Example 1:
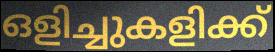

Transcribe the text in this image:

ഒളിച്ചുകളിക്ക്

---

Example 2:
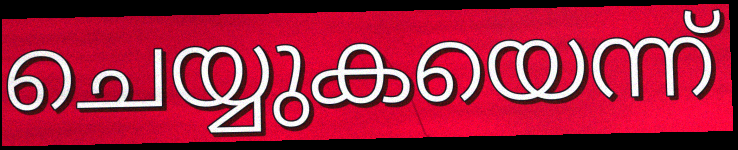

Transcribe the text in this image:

ചെയ്യുകയെന്ന്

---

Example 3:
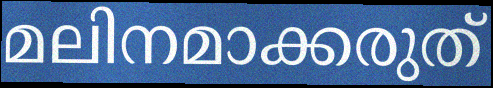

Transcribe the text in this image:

മലിനമാക്കരുത്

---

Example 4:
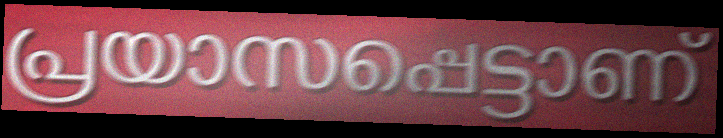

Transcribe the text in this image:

പ്രയാസപ്പെട്ടാണ്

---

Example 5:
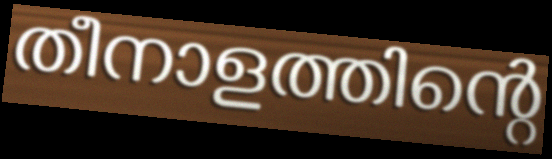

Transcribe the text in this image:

തീനാളത്തിന്റെ